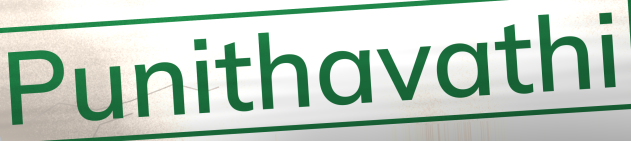
Punithavathi